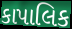
કાપાલિક